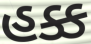
હક્ક